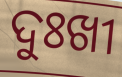
ଦୁଃଖୀ